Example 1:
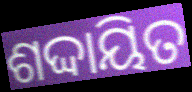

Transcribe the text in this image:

ଶଦ୍ଦାୟିତ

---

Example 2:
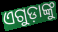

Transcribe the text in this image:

ଏଗୁଡ଼ାଙ୍କୁ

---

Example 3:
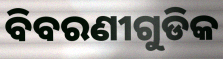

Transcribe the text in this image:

ବିବରଣୀଗୁଡିକ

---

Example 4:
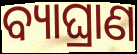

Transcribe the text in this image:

ବ୍ୟାଘ୍ରାଣ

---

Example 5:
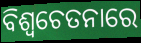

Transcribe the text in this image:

ବିଶ୍ୱଚେତନାରେ